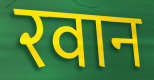
रवान